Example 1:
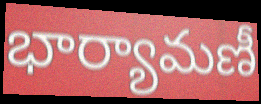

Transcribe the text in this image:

భార్యామణీ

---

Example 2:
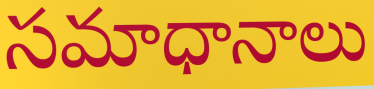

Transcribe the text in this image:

సమాధానాలు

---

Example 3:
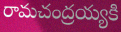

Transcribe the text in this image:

రామచంద్రయ్యకి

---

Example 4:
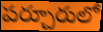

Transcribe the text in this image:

పర్చూరులో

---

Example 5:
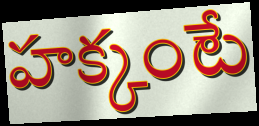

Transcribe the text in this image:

హక్కంటే